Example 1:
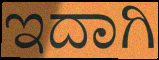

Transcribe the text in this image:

ಇದಾಗಿ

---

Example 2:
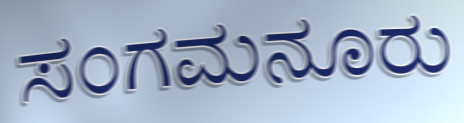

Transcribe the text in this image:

ಸಂಗಮನೂರು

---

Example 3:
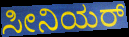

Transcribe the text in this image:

ಸೀನಿಯರ್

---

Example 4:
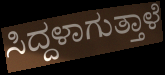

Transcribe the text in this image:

ಸಿದ್ದಳಾಗುತ್ತಾಳೆ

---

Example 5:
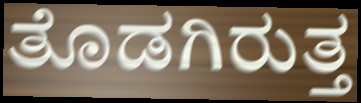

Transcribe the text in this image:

ತೊಡಗಿರುತ್ತ